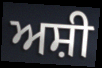
ਅਸ਼ੀ